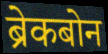
ब्रेकबोन